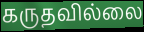
கருதவில்லை